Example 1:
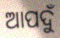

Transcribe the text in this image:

ଆପଦୁଁ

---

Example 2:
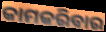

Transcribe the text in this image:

କାମକରିବାର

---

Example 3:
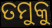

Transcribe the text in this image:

ତମୁକୁ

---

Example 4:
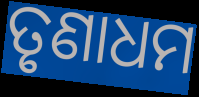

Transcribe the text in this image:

ତୃଣାଧମ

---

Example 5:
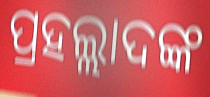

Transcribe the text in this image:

ପ୍ରହଲ୍ଲାଦଙ୍କ